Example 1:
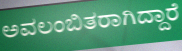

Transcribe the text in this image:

ಅವಲಂಬಿತರಾಗಿದ್ದಾರೆ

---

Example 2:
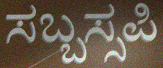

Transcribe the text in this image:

ಸಬ್ಬಸ್ಸಪಿ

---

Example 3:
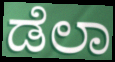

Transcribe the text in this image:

ಡೆಲಾ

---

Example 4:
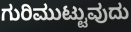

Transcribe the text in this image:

ಗುರಿಮುಟ್ಟುವುದು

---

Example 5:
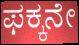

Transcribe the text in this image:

ಫಕ್ಕನೇ